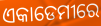
ଏକାଡେମୀରେ